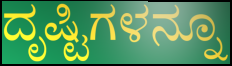
ದೃಷ್ಟಿಗಳನ್ನೂ